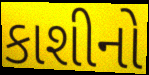
કાશીનો